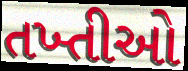
તખ્તીઓ